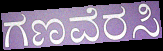
ಗಣವೆರಸಿ